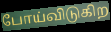
போய்விடுகிற